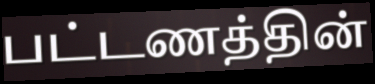
பட்டணத்தின்